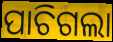
ପାଚିଗଲା